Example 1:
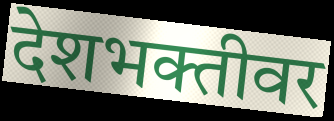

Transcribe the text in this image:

देशभक्तीवर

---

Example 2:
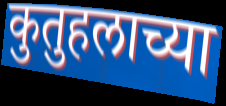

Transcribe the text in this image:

कुतुहलाच्या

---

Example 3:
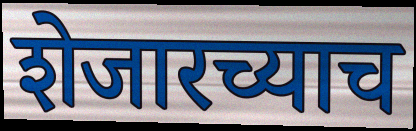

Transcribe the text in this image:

शेजारच्याच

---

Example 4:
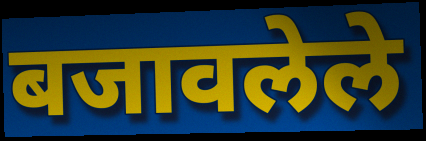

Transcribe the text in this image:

बजावलेले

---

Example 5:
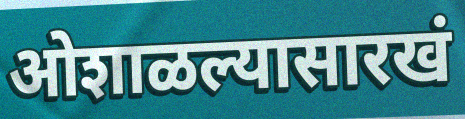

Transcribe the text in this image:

ओशाळल्यासारखं